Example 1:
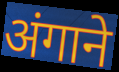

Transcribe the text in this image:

अंगाने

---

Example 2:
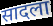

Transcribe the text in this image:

सादला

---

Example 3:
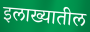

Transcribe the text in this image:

इलाख्यातील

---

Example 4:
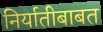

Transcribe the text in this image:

निर्यातीबाबत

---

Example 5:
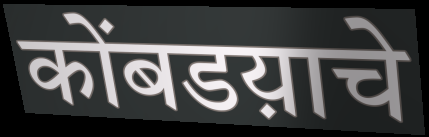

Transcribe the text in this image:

कोंबडय़ाचे